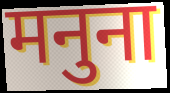
मनुना